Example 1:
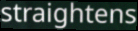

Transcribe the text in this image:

straightens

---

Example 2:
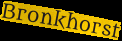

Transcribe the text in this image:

Bronkhorst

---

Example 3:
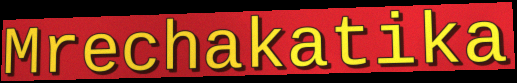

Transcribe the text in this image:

Mrechakatika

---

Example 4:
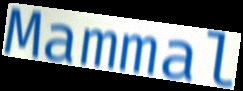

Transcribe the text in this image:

Mammal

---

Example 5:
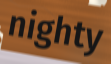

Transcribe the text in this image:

nighty